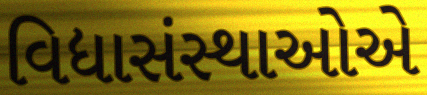
વિદ્યાસંસ્થાઓએ